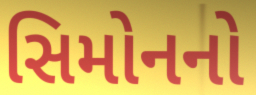
સિમોનનો